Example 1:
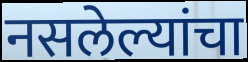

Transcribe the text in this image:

नसलेल्यांचा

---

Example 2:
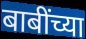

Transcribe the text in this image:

बाबींच्या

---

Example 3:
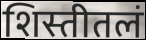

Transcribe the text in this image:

शिस्तीतलं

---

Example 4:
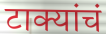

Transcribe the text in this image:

टाक्यांचं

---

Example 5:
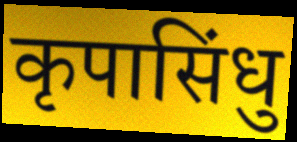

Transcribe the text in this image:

कृपासिंधु